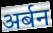
अर्बन